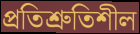
প্রতিশ্রুতিশীল